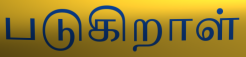
படுகிறாள்